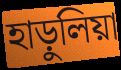
হাড়ুলিয়া